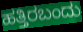
ಹತ್ತಿರಬಂದು